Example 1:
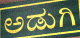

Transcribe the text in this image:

ಅಡುಗಿ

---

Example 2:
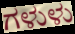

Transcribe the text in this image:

ಗಳುಳು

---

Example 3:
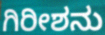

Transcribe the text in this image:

ಗಿರೀಶನು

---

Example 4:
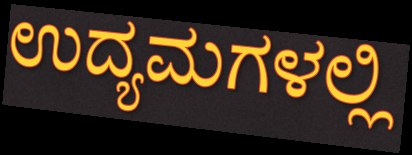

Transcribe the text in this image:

ಉದ್ಯಮಗಳಲ್ಲಿ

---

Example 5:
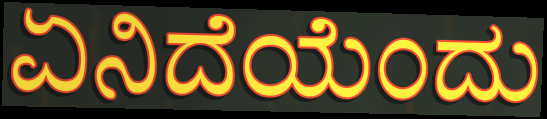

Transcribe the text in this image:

ಏನಿದೆಯೆಂದು